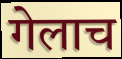
गेलाच